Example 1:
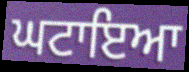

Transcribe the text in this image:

ਘਟਾਇਆ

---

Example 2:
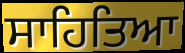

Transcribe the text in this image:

ਸਾਹਿਤਿਆ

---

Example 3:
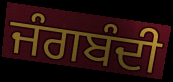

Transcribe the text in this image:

ਜੰਗਬੰਦੀ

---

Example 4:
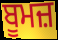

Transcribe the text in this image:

ਬੂਮਜ਼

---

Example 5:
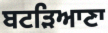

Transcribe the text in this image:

ਬਟੜਿਆਣਾ